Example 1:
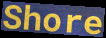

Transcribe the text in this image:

Shore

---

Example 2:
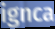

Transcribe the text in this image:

ignca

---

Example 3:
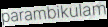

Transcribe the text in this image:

parambikulam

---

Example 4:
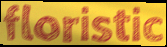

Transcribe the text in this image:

floristic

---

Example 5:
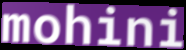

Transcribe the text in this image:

mohini